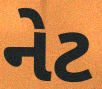
નેટ